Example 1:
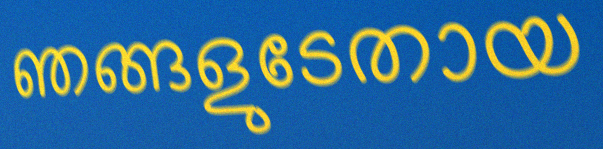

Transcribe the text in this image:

ഞങ്ങളുടേതായ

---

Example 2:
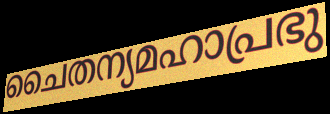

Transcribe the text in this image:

ചൈതന്യമഹാപ്രഭു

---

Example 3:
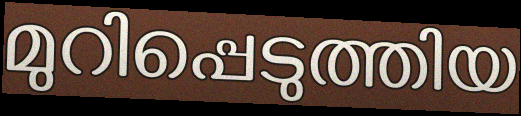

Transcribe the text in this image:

മുറിപ്പെടുത്തിയ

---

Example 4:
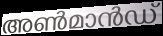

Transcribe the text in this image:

അൺമാൻഡ്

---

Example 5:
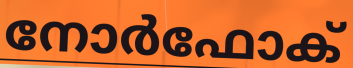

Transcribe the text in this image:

നോർഫോക്